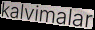
kalvimalar